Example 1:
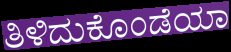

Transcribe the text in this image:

ತಿಳಿದುಕೊಂಡೆಯಾ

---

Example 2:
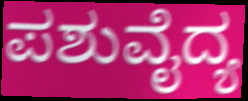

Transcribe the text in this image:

ಪಶುವೈದ್ಯ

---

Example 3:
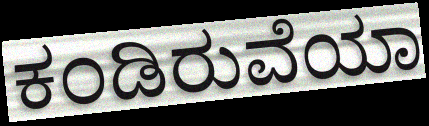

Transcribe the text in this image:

ಕಂಡಿರುವೆಯಾ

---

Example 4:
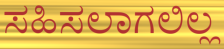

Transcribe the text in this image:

ಸಹಿಸಲಾಗಲಿಲ್ಲ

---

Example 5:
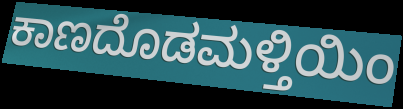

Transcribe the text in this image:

ಕಾಣದೊಡಮಳ್ತಿಯಿಂ